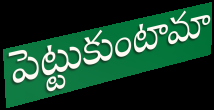
పెట్టుకుంటామా